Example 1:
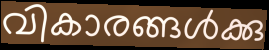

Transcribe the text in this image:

വികാരങ്ങൾക്കു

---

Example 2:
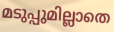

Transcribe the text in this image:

മടുപ്പുമില്ലാതെ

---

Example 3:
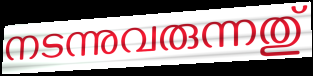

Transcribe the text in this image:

നടന്നുവരുന്നതു്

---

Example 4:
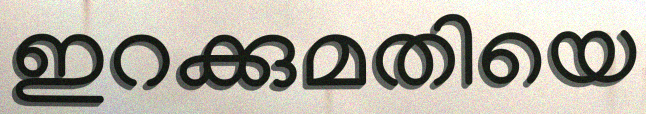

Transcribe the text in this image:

ഇറക്കുമതിയെ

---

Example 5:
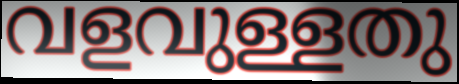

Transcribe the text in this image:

വളവുള്ളതു